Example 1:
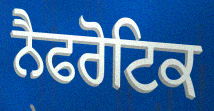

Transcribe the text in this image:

ਨੈਫਰੋਟਿਕ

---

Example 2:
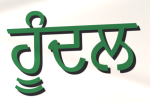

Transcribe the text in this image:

ਹੂੰਦਲ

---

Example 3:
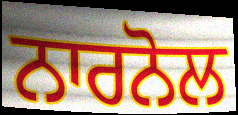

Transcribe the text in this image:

ਨਾਰਨੋਲ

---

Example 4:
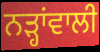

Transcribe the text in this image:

ਨੜ੍ਹਾਂਵਾਲੀ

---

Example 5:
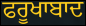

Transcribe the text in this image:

ਫਰੂਖਾਬਾਦ